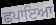
ਛਪਾਇਆ